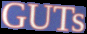
GUTs